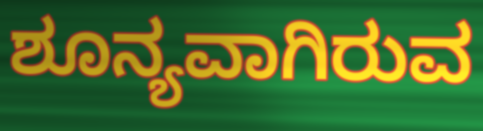
ಶೂನ್ಯವಾಗಿರುವ